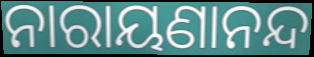
ନାରାୟଣାନନ୍ଦ